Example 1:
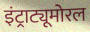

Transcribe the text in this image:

इंट्राट्यूमोरल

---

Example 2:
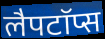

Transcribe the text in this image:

लैपटॉप्‍स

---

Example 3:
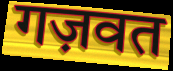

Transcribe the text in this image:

गज़वत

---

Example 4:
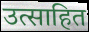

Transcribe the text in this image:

उत्साहित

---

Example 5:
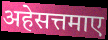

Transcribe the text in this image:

अहेसत्तमाए